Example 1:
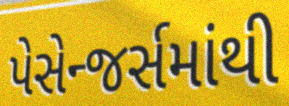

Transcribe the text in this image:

પેસેન્જર્સમાંથી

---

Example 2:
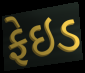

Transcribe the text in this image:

ફેઇડ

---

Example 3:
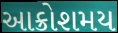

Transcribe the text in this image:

આક્રોશમય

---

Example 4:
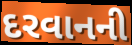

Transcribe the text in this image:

દરવાનની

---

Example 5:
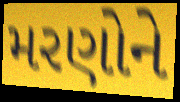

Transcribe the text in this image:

મરણોને